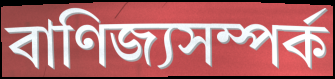
বাণিজ্যসম্পর্ক